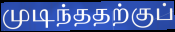
முடிந்ததற்குப்